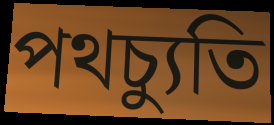
পথচ্যুতি